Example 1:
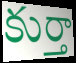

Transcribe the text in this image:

కుర్తా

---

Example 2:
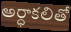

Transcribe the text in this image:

అర్ధాకలితో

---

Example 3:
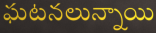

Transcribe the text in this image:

ఘటనలున్నాయి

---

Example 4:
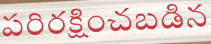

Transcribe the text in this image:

పరిరక్షించబడిన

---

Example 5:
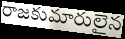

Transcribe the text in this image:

రాజకుమారులైన